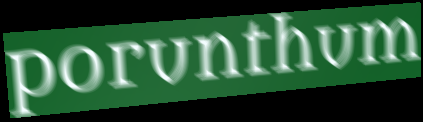
porunthum